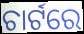
ଚାର୍ଟରେ